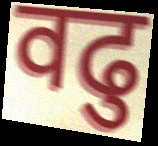
वढु